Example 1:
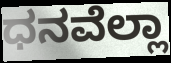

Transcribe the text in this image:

ಧನವೆಲ್ಲಾ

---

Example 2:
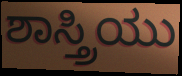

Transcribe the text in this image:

ಶಾಸ್ತ್ರಿಯು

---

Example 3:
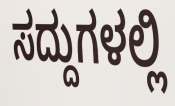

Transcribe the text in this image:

ಸದ್ದುಗಳಲ್ಲಿ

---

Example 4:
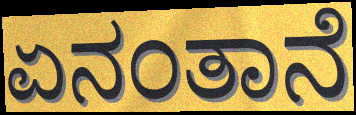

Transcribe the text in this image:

ಏನಂತಾನೆ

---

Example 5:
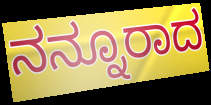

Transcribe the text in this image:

ನನ್ನೂರಾದ